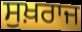
ਸੁਖ਼ਰਾਜ